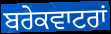
ਬਰੇਕਵਾਟਰਾਂ